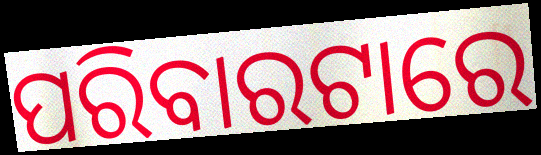
ପରିବାରଟାରେ